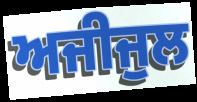
ਅਜੀਜੁਲ